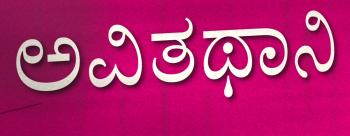
ಅವಿತಥಾನಿ